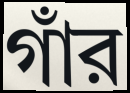
গাঁর